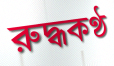
রুদ্ধকণ্ঠ